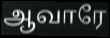
ஆவாரே